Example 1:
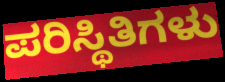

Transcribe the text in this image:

ಪರಿಸ್ಥಿತಿಗಳು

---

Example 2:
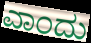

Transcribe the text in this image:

ಎಾಂದು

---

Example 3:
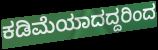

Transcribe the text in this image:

ಕಡಿಮೆಯಾದದ್ದರಿಂದ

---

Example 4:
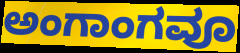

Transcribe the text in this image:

ಅಂಗಾಂಗವೂ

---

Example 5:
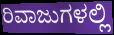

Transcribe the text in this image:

ರಿವಾಜುಗಳಲ್ಲಿ